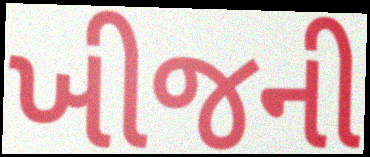
ખીજની